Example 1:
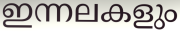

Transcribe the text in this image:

ഇന്നലകളും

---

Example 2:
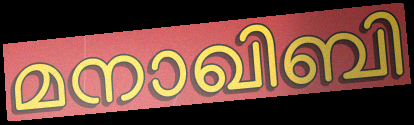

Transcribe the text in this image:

മനാഖിബി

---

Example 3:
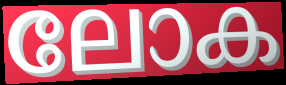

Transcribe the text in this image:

ലോക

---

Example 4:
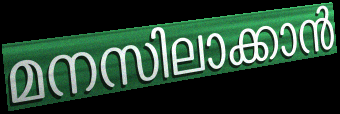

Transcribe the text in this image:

മനസിലാക്കാൻ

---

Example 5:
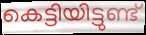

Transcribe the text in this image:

കെട്ടിയിട്ടുണ്ട്